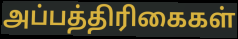
அப்பத்திரிகைகள்